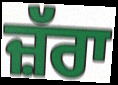
ਜ਼ੱਰਾ